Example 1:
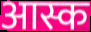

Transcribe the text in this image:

आस्क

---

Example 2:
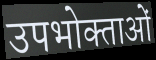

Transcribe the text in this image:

उपभोक्‍ताओं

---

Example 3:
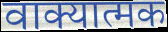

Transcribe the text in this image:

वाक्यात्मक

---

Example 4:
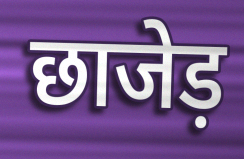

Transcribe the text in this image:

छाजेड़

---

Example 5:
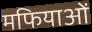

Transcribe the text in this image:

मफियाओं